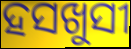
ହସଖୁସୀ